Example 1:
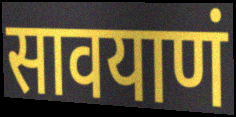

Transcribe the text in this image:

सावयाणं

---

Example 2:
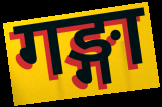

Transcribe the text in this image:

गङ्गा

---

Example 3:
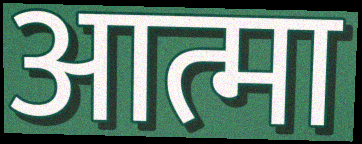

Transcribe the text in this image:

आत्मा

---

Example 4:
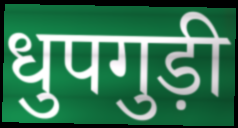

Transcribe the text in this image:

धुपगुड़ी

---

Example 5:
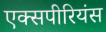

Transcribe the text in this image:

एक्सपीरियंस